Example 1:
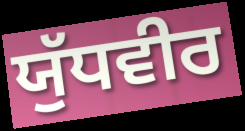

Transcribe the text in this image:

ਯੁੱਧਵੀਰ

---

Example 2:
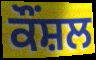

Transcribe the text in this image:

ਕੌਂਸ਼ਲ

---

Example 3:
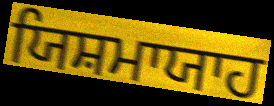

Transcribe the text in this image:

ਯਿਸ਼ਮਾਯਾਹ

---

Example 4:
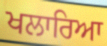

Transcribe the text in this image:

ਖਲਾਰਿਆ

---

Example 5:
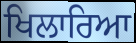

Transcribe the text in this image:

ਖਿਲਾਰਿਆ